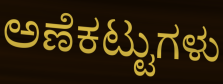
ಅಣೆಕಟ್ಟುಗಳು